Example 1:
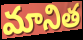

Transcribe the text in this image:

మానిత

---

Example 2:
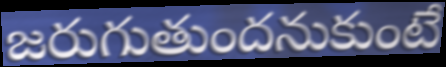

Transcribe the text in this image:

జరుగుతుందనుకుంటే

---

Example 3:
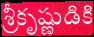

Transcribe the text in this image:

శ్రీకృష్ణుడికి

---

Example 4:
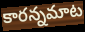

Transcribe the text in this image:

కారన్నమాట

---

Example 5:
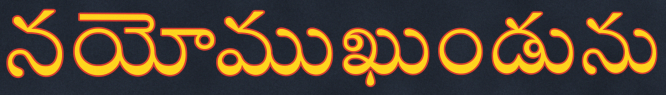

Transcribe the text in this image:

నయోముఖుండును